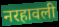
नरहावली